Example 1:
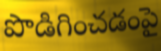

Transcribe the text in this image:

పొడిగించడంపై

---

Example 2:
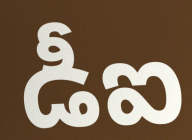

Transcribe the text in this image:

డీఐ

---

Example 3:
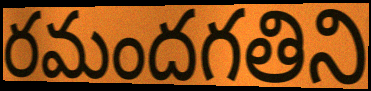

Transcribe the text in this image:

రమందగతిని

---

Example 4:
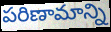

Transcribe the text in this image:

పరిణామాన్ని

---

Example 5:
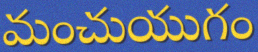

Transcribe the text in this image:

మంచుయుగం